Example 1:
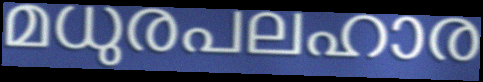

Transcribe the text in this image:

മധുരപലഹാര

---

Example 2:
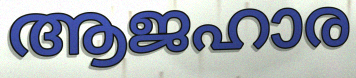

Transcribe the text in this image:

ആജഹാര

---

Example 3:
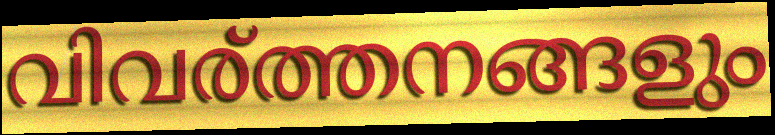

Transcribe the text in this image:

വിവര്ത്തനങ്ങളും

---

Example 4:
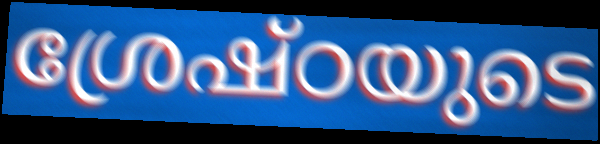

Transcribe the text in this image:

ശ്രേഷ്ഠയുടെ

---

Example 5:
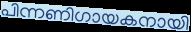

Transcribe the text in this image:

പിന്നണിഗായകനായി